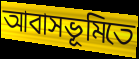
আবাসভূমিতে